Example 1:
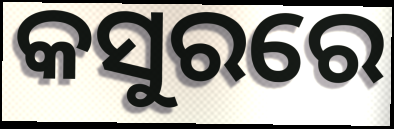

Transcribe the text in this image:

କସୁରରେ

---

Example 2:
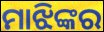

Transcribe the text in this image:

ମାଝିଙ୍କର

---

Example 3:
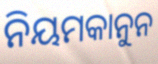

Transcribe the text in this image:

ନିୟମକାନୁନ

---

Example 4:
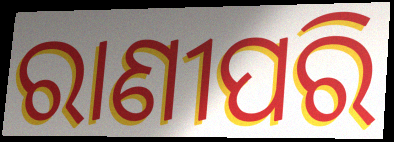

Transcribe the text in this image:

ରାଣୀପରି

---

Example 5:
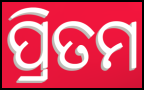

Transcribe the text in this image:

ପ୍ରିତମ